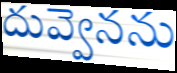
దువ్వెనను